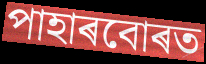
পাহাৰবোৰত